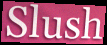
Slush